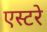
एस्टरे